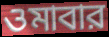
ওমাবার